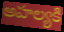
అహల్యకి